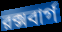
রক্সবার্গ